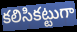
కలిసికట్టుగా